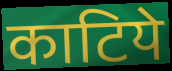
काटिये